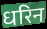
धरिन